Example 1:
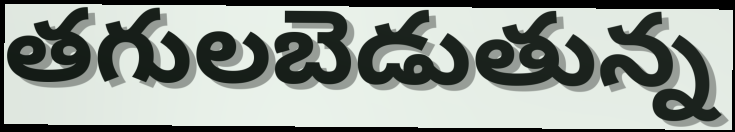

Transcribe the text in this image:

తగులబెడుతున్న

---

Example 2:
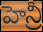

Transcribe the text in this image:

హెన్రీ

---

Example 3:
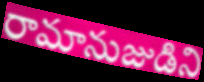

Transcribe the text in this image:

రామానుజుడిని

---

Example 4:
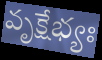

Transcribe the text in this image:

వృక్షేభ్యః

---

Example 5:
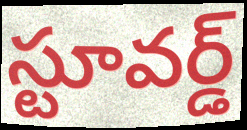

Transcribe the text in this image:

స్టూవర్డ్